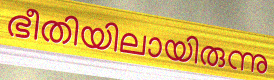
ഭീതിയിലായിരുന്നു